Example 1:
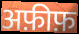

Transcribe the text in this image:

अफ़ीफ़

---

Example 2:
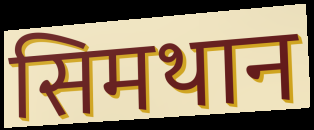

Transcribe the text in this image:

सिमथान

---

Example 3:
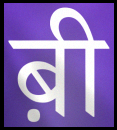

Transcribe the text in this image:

ब़ी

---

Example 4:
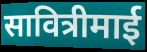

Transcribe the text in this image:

सावित्रीमाई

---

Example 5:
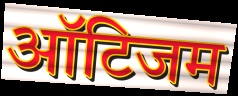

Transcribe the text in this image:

ऑटिजम